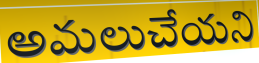
అమలుచేయని